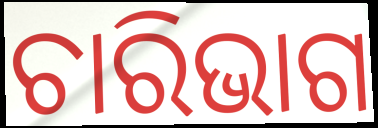
ଚାରିଭାଗ